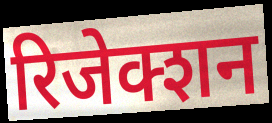
रिजेक्शन